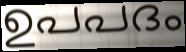
ഉപപദം